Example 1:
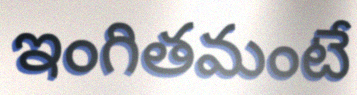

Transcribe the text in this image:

ఇంగితమంటే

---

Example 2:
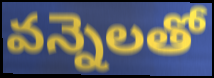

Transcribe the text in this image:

వన్నెలతో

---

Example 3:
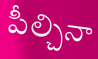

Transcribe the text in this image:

పీల్చినా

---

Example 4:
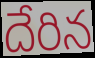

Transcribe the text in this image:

దేరిన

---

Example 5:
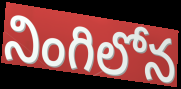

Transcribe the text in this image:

నింగిలోన